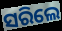
ସରିଲେ